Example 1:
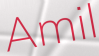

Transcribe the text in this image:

Amil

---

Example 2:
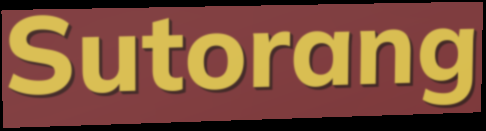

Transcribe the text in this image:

Sutorang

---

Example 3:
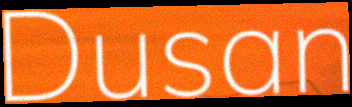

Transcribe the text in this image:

Dusan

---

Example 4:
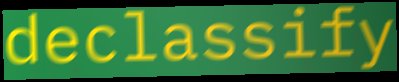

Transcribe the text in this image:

declassify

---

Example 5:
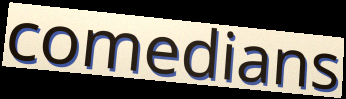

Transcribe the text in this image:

comedians